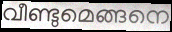
വീണ്ടുമെങ്ങനെ